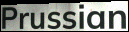
Prussian